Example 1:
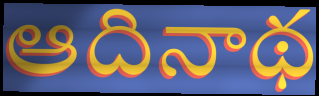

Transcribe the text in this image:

ఆదినాథ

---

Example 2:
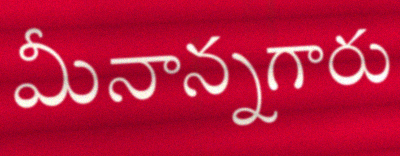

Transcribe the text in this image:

మీనాన్నగారు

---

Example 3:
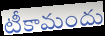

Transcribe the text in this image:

టీకామందు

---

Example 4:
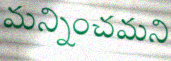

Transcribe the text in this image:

మన్నించమని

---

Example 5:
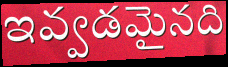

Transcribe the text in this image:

ఇవ్వడమైనది